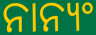
ନାନ୍ୟଂ